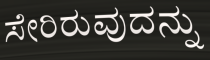
ಸೇರಿರುವುದನ್ನು